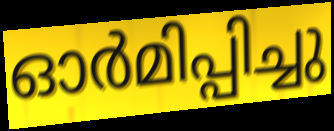
ഓർമിപ്പിച്ചു